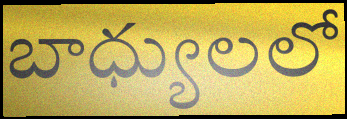
బాధ్యులలో